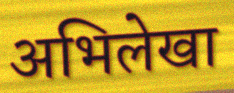
अभिलेखा